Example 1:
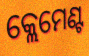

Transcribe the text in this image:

କ୍ଲେମେଣ୍ଟ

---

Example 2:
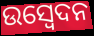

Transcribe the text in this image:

ଉସ୍ୱେଦନ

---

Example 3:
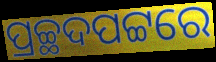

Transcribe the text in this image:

ପ୍ରଚ୍ଛଦପଟ୍ଟରେ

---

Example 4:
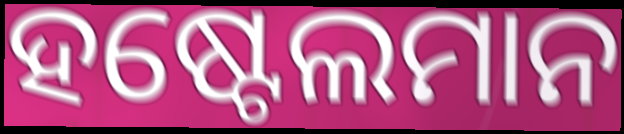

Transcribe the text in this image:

ହଷ୍ଟେଲମାନ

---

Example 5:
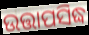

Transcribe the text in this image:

ଉତ୍ତାପସିଦ୍ଧ